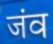
जंव